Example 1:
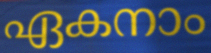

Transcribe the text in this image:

ഏകനാം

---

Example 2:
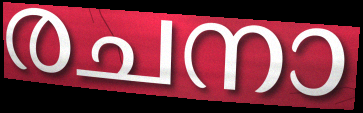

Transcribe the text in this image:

രചനാ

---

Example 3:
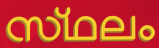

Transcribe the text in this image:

സ്‌ഥലം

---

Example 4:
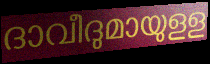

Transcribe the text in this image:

ദാവീദുമായുളള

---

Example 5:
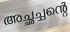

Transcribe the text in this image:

അച്ഛച്ചന്റെ